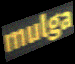
mulga